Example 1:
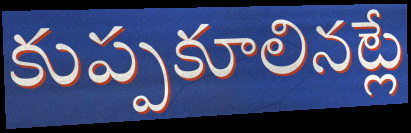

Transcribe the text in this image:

కుప్పకూలినట్లే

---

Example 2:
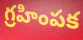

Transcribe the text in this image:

గ్రహింపక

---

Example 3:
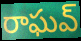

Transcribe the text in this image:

రాఘవ్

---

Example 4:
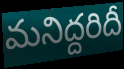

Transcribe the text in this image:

మనిద్దరిదీ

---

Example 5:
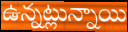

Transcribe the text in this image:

ఉన్నట్లున్నాయి